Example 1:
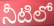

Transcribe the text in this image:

నీటిలో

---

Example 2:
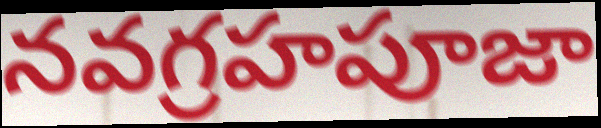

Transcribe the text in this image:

నవగ్రహపూజా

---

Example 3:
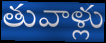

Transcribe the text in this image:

తువాళ్లు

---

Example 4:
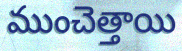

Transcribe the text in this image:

ముంచెత్తాయి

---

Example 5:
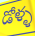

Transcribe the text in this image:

డోళ్ళ